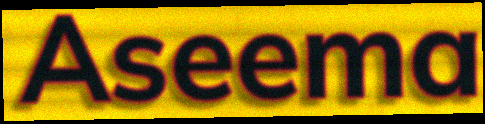
Aseema